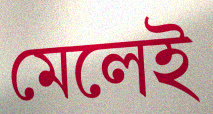
মেলেই